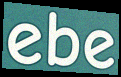
ebe